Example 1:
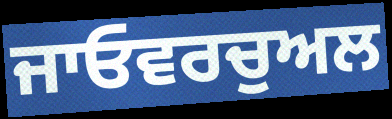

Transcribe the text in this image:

ਜਾਓਵਰਚੁਅਲ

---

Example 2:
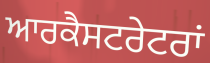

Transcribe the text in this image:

ਆਰਕੈਸਟਰੇਟਰਾਂ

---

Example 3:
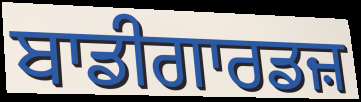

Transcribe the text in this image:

ਬਾਡੀਗਾਰਡਜ਼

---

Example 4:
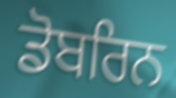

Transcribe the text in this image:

ਡੋਬਰਿਨ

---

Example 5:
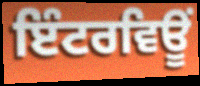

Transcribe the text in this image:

ਇੰਟਰਵਿਊਂ